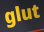
glut